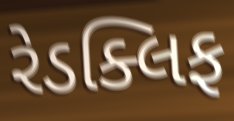
રેડક્લિફ